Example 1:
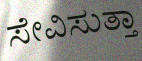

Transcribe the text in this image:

ಸೇವಿಸುತ್ತಾ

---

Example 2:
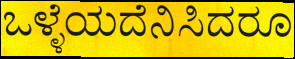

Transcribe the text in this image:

ಒಳ್ಳೆಯದೆನಿಸಿದರೂ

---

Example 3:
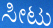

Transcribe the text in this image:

ಸೀಟು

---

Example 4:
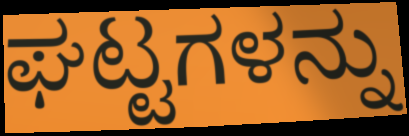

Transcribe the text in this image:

ಘಟ್ಟಗಳನ್ನು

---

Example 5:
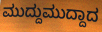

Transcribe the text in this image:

ಮುದ್ದುಮುದ್ದಾದ